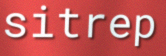
sitrep